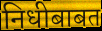
निधीबाबत